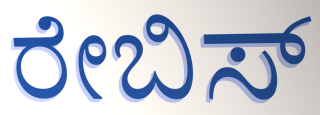
ರೇಬಿಸ್